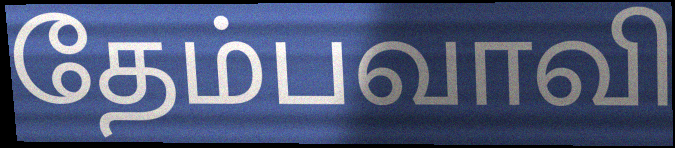
தேம்பவாவி